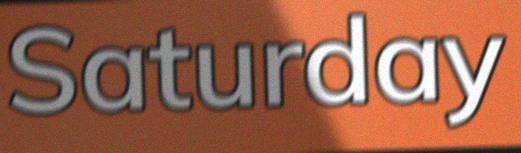
Saturday